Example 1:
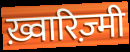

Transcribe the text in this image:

ख़्वारिज़्मी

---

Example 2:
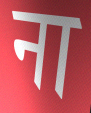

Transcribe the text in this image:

ना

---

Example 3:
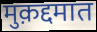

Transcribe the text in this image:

मुक़द्दमात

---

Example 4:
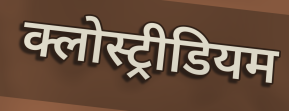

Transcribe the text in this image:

क्लोस्ट्रीडियम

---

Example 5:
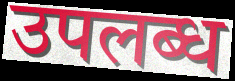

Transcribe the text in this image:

उपलब्ध